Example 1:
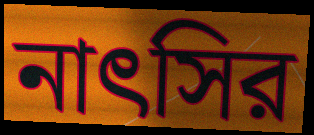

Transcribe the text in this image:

নাৎসির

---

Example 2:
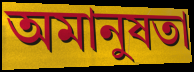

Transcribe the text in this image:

অমানুষতা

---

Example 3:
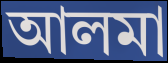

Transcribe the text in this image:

আলমা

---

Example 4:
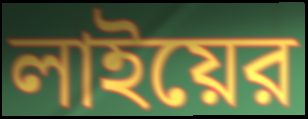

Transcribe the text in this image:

লাইয়ের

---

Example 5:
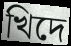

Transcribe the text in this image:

খিদে